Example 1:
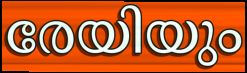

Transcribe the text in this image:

രേയിയും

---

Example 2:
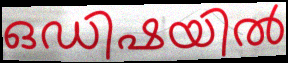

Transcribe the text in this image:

ഒഡിഷയിൽ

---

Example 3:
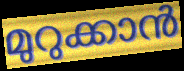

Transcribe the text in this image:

മുറുക്കാൻ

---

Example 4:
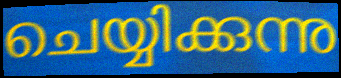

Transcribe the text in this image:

ചെയ്യിക്കുന്നു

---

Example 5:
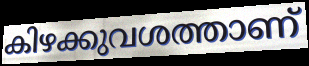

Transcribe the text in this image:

കിഴക്കുവശത്താണ്